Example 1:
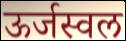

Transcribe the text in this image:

ऊर्जस्वल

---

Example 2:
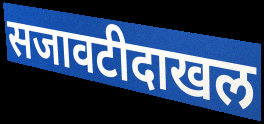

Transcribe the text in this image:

सजावटीदाखल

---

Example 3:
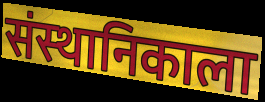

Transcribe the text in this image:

संस्थानिकाला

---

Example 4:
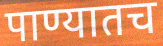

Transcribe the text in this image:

पाण्यातच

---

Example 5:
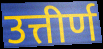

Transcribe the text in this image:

उत्तीर्ण